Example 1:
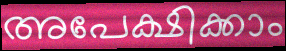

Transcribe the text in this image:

അപേക്ഷിക്കാം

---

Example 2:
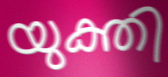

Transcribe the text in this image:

യുക്തി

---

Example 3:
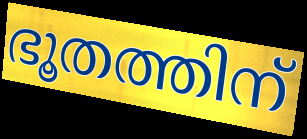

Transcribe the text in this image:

ഭൂതത്തിന്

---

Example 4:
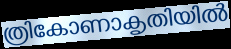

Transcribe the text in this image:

ത്രികോണാകൃതിയിൽ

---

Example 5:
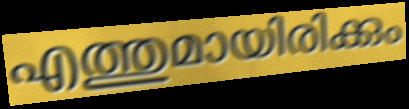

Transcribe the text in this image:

എത്തുമായിരിക്കും